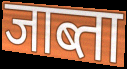
जाब्ता